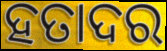
ହତାଦର